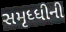
સમૃધ્ધીની